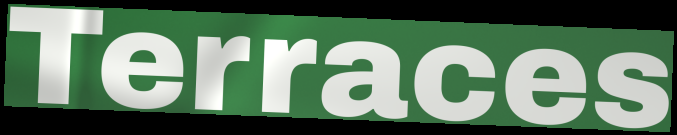
Terraces